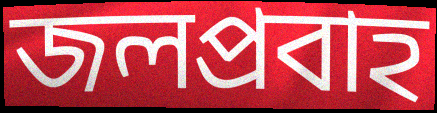
জলপ্ৰবাহ